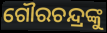
ଗୌରଚନ୍ଦ୍ରଙ୍କୁ